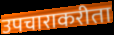
उपचाराकरीता